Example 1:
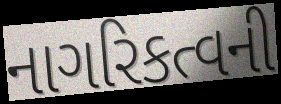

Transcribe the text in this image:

નાગરિકત્વની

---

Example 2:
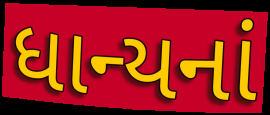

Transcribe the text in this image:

ધાન્યનાં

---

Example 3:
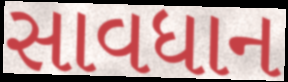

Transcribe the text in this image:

સાવધાન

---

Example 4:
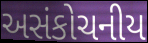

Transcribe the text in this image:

અસંકોચનીય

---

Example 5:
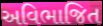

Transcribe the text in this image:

અવિભાજિત